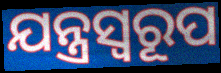
ଯନ୍ତ୍ରସ୍ୱରୂପ